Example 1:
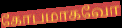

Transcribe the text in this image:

கோபமாகவோ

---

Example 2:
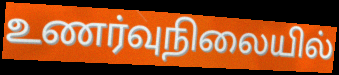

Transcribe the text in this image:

உணர்வுநிலையில்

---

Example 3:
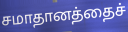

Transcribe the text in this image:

சமாதானத்தைச்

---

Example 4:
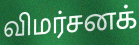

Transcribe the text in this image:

விமர்சனக்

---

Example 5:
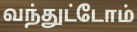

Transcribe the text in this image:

வந்துட்டோம்